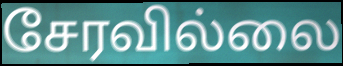
சேரவில்லை